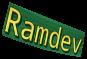
Ramdev